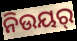
ନିଉୟର୍